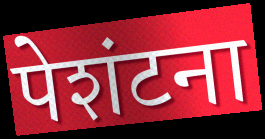
पेशंटना